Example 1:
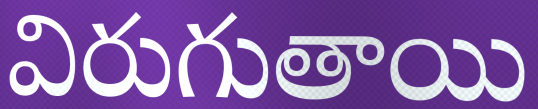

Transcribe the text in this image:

విరుగుతాయి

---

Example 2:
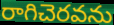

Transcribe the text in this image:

రాగిచెరవను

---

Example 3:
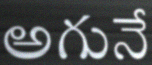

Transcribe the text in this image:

అగునే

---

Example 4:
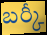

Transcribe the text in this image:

బర్కీ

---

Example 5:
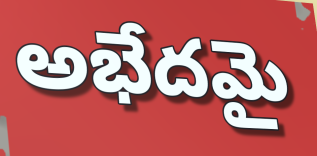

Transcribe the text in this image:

అభేదమై